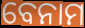
ବେନାମ